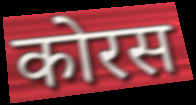
कोरस